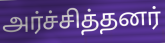
அர்ச்சித்தனர்